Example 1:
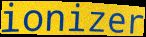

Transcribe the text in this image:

ionizer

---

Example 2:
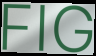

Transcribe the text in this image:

FIG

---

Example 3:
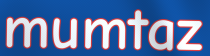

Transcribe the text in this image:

mumtaz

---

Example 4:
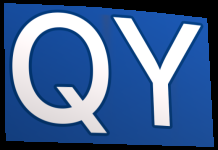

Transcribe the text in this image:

QY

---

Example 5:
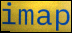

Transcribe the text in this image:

imap